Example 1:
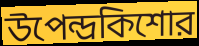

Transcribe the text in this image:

উপেন্দ্রকিশোর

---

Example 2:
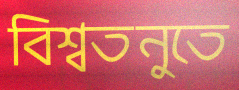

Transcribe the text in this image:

বিশ্বতনুতে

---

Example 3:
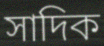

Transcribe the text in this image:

সাদিক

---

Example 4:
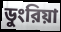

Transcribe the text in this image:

ডুংরিয়া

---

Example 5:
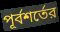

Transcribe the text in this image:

পূর্বশর্তের